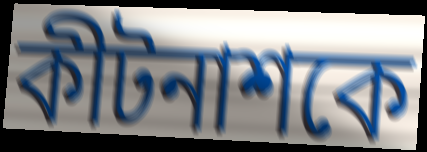
কীটনাশকে